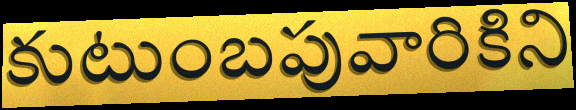
కుటుంబపువారికిని